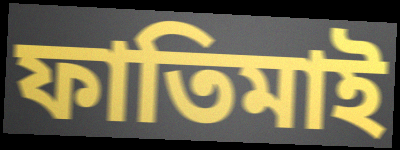
ফাতিমাই